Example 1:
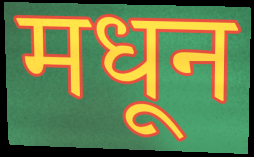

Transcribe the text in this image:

मधून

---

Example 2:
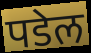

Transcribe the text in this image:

पडेल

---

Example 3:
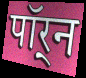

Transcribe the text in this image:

पॉर्न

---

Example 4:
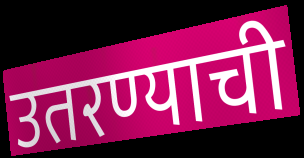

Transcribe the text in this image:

उतरण्याची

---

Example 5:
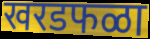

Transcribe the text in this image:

खरडफळा